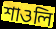
শাওলি